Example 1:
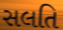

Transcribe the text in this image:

સલતિ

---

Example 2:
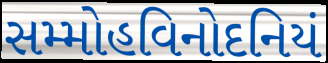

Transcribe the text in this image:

સમ્મોહવિનોદનિયં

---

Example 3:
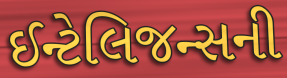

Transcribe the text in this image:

ઈન્ટેલિજન્સની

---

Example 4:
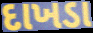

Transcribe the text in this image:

દાખડા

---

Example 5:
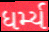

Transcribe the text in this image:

ધર્મ્ય